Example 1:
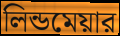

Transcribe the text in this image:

লিন্ডমেয়ার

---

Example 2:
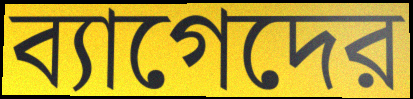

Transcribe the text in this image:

ব্যাগেদের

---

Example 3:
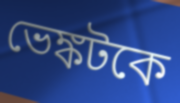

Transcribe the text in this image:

ভেঙ্কটকে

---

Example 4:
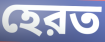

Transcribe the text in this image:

হেরত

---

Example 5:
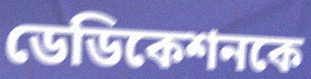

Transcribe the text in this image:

ডেডিকেশনকে